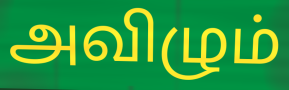
அவிழும்